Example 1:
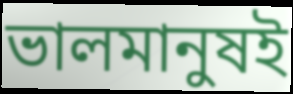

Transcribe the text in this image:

ভালমানুষই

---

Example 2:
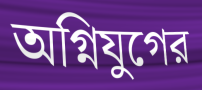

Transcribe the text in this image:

অগ্নিযুগের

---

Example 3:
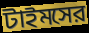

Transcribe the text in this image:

টাইমসের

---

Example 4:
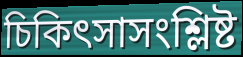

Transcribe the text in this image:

চিকিৎসাসংশ্লিষ্ট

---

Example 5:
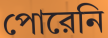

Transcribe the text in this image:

পোরেনি